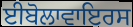
ਈਬੋਲਾਵਾਇਰਸ